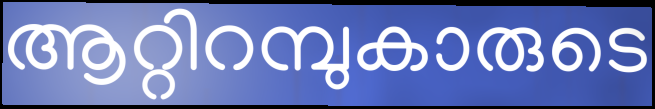
ആറ്റിറമ്പുകാരുടെ